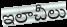
ఇలాచీలు